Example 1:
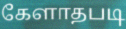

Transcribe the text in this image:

கேளாதபடி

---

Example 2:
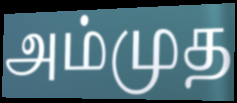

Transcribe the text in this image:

அம்முத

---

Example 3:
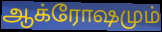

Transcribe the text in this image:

ஆக்ரோஷமும்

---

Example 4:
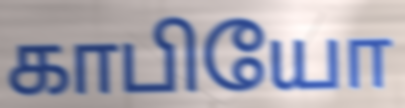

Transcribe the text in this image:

காபியோ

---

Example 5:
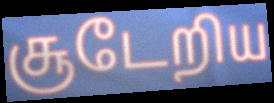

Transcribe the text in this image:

சூடேறிய